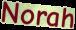
Norah